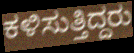
ಕಳಿಸುತ್ತಿದ್ದರು